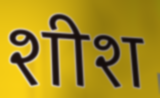
शीश